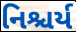
નિશ્ચર્ય